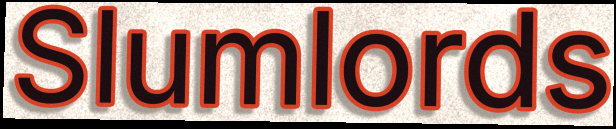
Slumlords